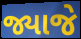
જ્યાજે